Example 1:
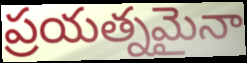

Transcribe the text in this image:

ప్రయత్నమైనా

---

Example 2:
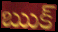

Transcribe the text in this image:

ఋక్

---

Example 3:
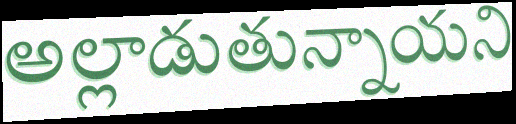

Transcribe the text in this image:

అల్లాడుతున్నాయని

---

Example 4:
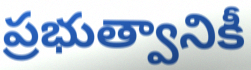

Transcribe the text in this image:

ప్రభుత్వానికీ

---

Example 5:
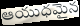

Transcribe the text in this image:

ఆయుధమైన